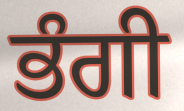
ਭੰਗੀ